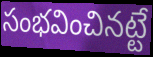
సంభవించినట్టే